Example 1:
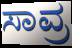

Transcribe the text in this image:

ಸಾವ್ರ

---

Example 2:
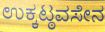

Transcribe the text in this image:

ಉಕ್ಕಟ್ಠವಸೇನ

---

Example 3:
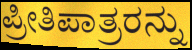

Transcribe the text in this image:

ಪ್ರೀತಿಪಾತ್ರರನ್ನು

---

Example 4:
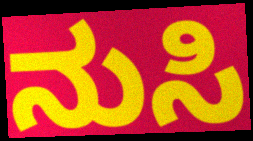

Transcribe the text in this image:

ನುಸಿ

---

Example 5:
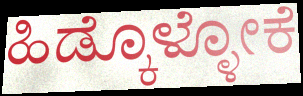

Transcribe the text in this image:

ಹಿಡ್ಕೊಳ್ಳೋಕೆ